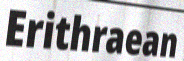
Erithraean